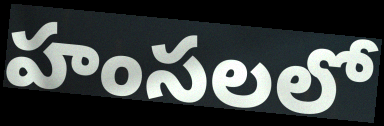
హంసలలో